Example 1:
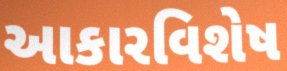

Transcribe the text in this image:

આકારવિશેષ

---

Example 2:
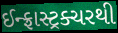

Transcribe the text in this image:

ઈન્ફ્રાસ્ટ્રક્ચરથી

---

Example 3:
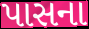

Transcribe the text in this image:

પાસના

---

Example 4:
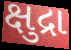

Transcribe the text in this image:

ક્ષુદ્રા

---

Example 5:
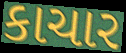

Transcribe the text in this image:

કાચાર